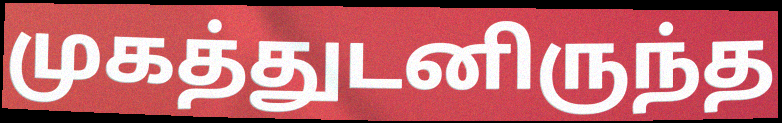
முகத்துடனிருந்த